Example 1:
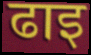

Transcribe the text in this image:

ढाइ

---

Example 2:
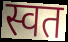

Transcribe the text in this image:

स्वत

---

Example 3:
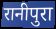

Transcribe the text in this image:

रानीपुरा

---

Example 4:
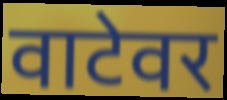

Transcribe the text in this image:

वाटेवर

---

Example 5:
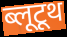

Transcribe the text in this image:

ब्लूटूथ